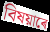
বিষয়াৰে